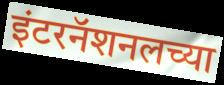
इंटरनॅशनलच्या